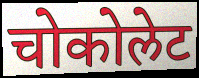
चोकोलेट